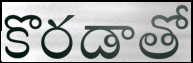
కొరడాతో